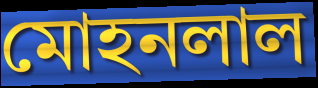
মোহনলাল